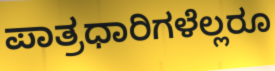
ಪಾತ್ರಧಾರಿಗಳೆಲ್ಲರೂ